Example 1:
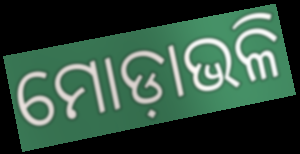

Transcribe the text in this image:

ମୋଡ଼ାଭଳି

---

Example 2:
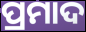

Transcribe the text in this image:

ପ୍ରମାଦ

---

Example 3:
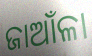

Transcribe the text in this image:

ଜାଆଁଳା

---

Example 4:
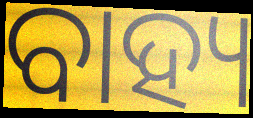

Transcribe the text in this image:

ବାହ୍ୟ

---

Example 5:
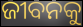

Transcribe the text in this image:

ଜୀବନକୁ